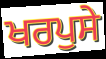
ਖਰਪੁਸੇ